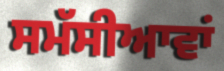
ਸਮੱਸੀਆਵਾਂ